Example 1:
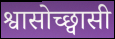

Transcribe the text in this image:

श्वासोच्छ्वासी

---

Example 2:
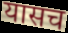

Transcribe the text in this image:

यासच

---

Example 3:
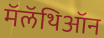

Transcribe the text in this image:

मॅलॅथिऑन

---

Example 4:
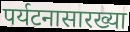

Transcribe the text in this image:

पर्यटनासारख्या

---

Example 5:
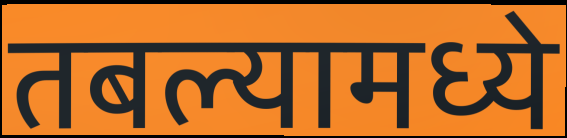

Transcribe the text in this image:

तबल्यामध्ये